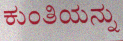
ಕುಂತಿಯನ್ನು